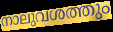
നാലുവശത്തും